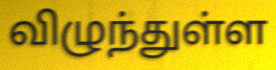
விழுந்துள்ள